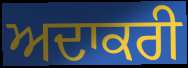
ਅਦਾਕਰੀ